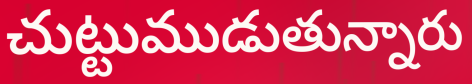
చుట్టుముడుతున్నారు